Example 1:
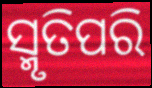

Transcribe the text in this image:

ସ୍ମୃତିପରି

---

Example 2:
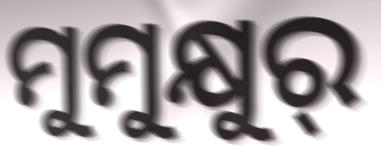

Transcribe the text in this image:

ମୁମୁକ୍ଷୁର୍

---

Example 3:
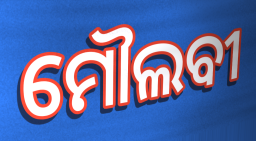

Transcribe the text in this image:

ମୌଲବୀ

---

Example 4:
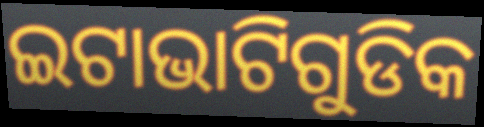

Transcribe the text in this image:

ଇଟାଭାଟିଗୁଡିକ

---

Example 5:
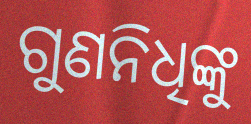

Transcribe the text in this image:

ଗୁଣନିଧିଙ୍କୁ